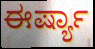
ಈರ್ಷ್ಯಾ